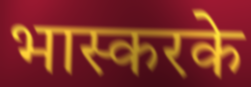
भास्करके